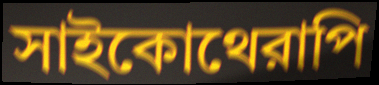
সাইকোথেরাপি